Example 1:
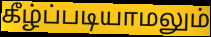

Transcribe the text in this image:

கீழ்ப்படியாமலும்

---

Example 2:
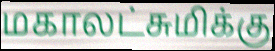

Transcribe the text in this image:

மகாலட்சுமிக்கு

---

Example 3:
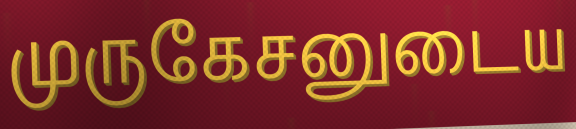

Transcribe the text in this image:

முருகேசனுடைய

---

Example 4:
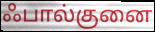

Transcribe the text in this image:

ஃபால்குனை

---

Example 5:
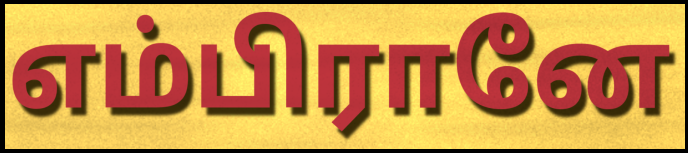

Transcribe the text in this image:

எம்பிரானே